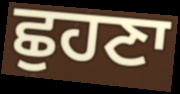
ਛੁਹਣਾ